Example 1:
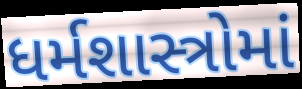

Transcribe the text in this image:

ધર્મશાસ્ત્રોમાં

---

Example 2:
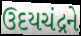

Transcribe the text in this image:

ઉદયચંદ્રને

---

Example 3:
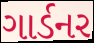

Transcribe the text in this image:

ગાર્ડનર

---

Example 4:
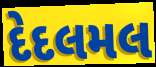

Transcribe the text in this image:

દેદલમલ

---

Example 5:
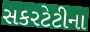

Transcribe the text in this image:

સકરટેટીના